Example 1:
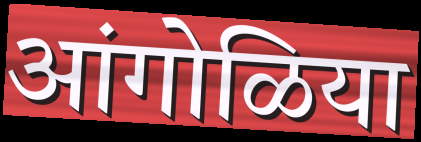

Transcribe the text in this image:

आंगोळिया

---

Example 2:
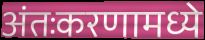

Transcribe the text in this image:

अंतःकरणामध्ये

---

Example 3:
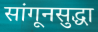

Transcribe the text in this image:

सांगूनसुद्धा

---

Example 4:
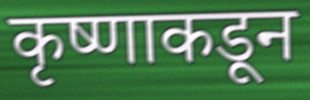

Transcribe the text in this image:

कृष्णाकडून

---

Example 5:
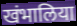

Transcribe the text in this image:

खंभालिया